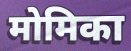
मोमिका